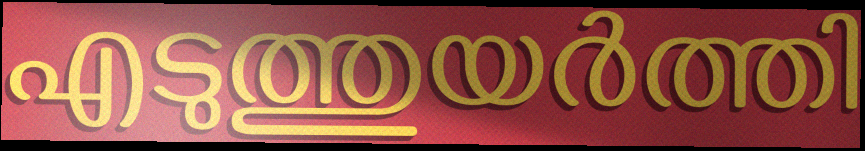
എടുത്തുയർത്തി